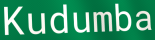
Kudumba